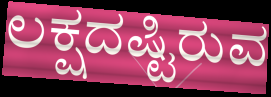
ಲಕ್ಷದಷ್ಟಿರುವ